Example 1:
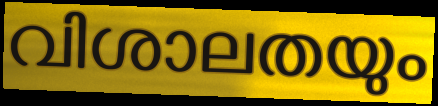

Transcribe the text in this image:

വിശാലതയും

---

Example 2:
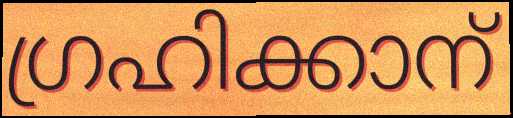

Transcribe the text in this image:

ഗ്രഹിക്കാന്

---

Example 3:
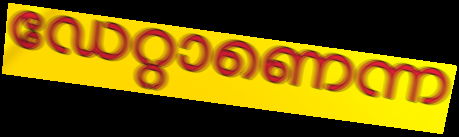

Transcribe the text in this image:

ഡേറ്റാണെന്ന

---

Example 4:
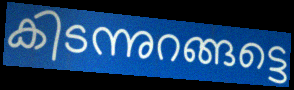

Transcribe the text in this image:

കിടന്നുറങ്ങട്ടെ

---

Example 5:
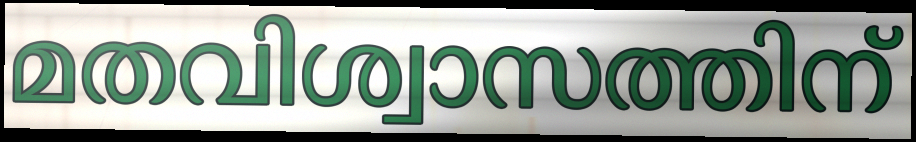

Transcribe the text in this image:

മതവിശ്വാസത്തിന്